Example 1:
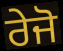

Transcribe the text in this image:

ਰੇਜੋ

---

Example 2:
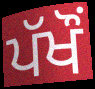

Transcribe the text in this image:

ਪੱਖੌਂ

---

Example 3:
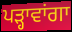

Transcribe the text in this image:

ਪੜ੍ਹਾਵਾਂਗਾ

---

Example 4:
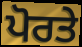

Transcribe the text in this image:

ਪੋਰਤੇ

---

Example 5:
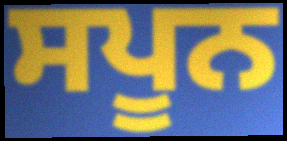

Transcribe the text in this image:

ਸਪੂਨ